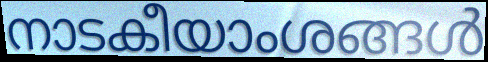
നാടകീയാംശങ്ങൾ